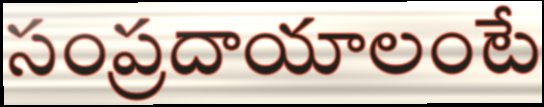
సంప్రదాయాలంటే